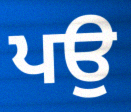
ਪਉ